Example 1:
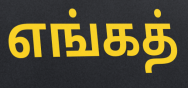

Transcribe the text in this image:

எங்கத்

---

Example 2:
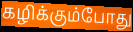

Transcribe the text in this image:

கழிக்கும்போது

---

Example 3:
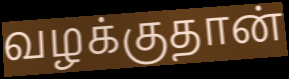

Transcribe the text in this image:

வழக்குதான்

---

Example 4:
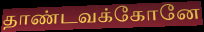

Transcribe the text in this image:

தாண்டவக்கோனே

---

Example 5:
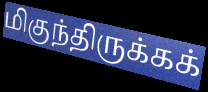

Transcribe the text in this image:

மிகுந்திருக்கக்